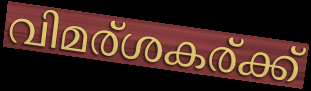
വിമര്ശകര്ക്ക്